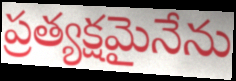
ప్రత్యక్షమైనేను